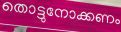
തൊട്ടുനോക്കണം